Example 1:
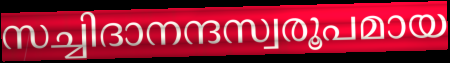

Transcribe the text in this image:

സച്ചിദാനന്ദസ്വരൂപമായ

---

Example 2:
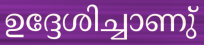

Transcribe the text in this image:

ഉദ്ദേശിച്ചാണു്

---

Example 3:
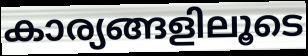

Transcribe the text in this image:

കാര്യങ്ങളിലൂടെ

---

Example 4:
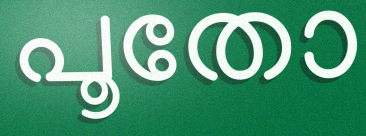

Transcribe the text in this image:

പൂതോ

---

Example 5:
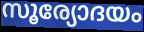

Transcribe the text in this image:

സൂര്യോദയം